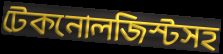
টেকনোলজিস্টসহ